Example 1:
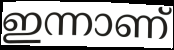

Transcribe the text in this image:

ഇന്നാണ്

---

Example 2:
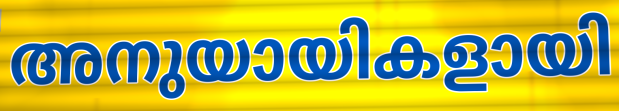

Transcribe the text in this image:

അനുയായികളായി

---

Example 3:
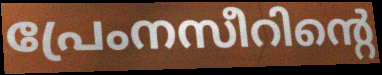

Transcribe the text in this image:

പ്രേംനസീറിന്റെ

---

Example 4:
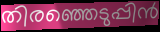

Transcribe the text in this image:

തിരഞ്ഞെടുപ്പിൻ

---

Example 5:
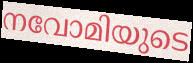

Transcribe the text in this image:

നവോമിയുടെ